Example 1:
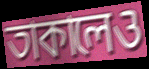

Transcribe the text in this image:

তাকালেও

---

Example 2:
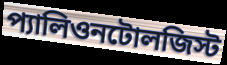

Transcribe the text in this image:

প্যালিওনটোলজিস্ট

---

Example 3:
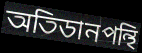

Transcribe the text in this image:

অতিডানপন্থি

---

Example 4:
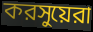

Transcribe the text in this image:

করসুয়েরা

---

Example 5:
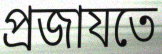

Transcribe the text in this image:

প্রজাযতে